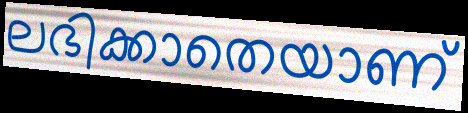
ലഭിക്കാതെയാണ്